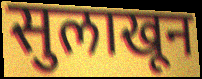
सुलाखून